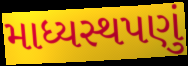
માધ્યસ્થપણું